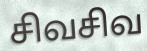
சிவசிவ